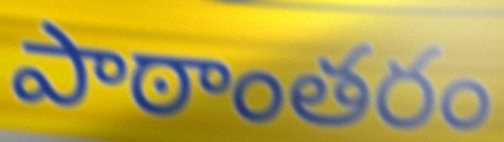
పాఠాంతరం